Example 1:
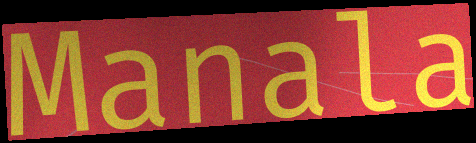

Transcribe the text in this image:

Manala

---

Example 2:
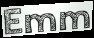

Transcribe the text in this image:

Emm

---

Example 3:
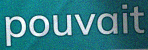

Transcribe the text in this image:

pouvait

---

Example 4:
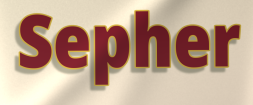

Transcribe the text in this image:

Sepher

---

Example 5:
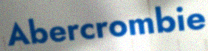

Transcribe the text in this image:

Abercrombie